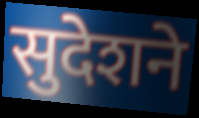
सुदेशने